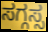
ಸಗ್ಗಸ್ಸ